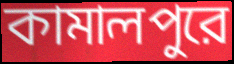
কামালপুরে